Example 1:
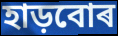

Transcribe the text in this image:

হাড়বোৰ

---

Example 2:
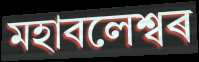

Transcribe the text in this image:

মহাবলেশ্বৰ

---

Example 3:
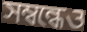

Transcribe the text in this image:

সম্বন্ধেও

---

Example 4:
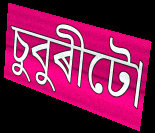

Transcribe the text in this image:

চুবুৰীটো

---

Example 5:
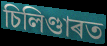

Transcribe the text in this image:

চিলিণ্ডাৰত